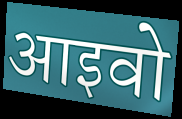
आइवो